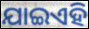
ଯାଇଏହି